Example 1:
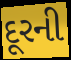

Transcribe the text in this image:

દૂરની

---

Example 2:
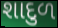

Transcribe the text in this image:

શાદુળ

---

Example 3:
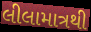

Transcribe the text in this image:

લીલામાત્રથી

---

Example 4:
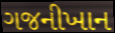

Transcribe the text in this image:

ગજનીખાન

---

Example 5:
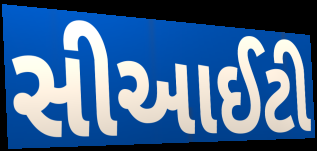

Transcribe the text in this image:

સીઆઈટી